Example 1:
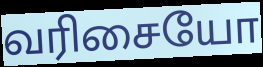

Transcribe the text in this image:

வரிசையோ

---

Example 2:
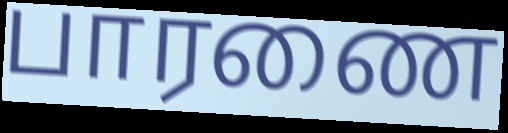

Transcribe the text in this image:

பாரணை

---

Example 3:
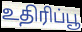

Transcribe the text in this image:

உதிரிப்பூ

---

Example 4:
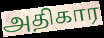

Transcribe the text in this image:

அதிகார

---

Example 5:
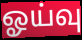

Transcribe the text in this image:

ஓய்வு